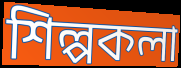
শিল্পকলা